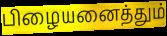
பிழையனைத்தும்